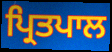
ਪ੍ਰਿਤਪਾਲ